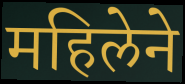
महिलेने